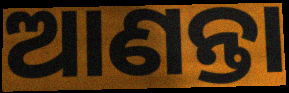
ଆଣନ୍ତା